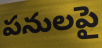
పనులపై